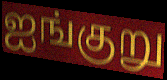
ஐங்குறு